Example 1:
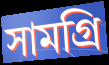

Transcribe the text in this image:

সামগ্রি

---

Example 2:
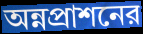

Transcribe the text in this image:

অন্নপ্রাশনের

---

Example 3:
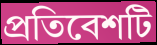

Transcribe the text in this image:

প্রতিবেশটি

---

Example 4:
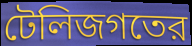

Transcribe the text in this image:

টেলিজগতের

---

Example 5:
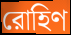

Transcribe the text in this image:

রোহিণ